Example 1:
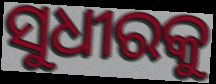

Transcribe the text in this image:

ସୁଧୀରକୁ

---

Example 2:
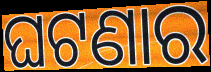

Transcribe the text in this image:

ଘଟଣାର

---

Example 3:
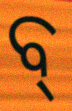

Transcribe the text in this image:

ବ୍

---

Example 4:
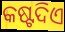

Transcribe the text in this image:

କଷ୍ଟଦିଏ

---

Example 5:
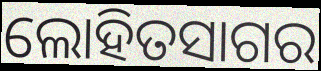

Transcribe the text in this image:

ଲୋହିତସାଗର